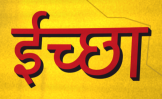
ईच्छा